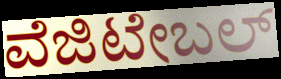
ವೆಜಿಟೇಬಲ್